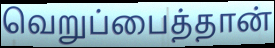
வெறுப்பைத்தான்